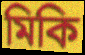
মিকি